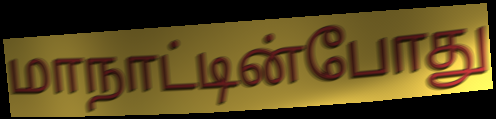
மாநாட்டின்போது